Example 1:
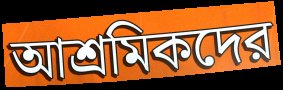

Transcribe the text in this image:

আশ্রমিকদের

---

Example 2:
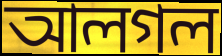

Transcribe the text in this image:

আলগল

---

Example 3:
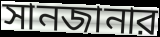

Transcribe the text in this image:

সানজানার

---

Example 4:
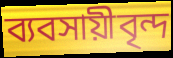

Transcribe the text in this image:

ব্যবসায়ীবৃন্দ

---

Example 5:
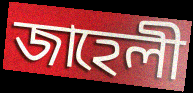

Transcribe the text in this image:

জাহেলী